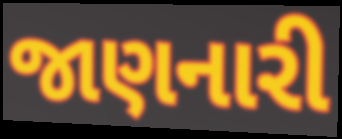
જાણનારી